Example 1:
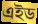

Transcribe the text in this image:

এইড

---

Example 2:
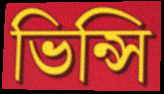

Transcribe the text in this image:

ভিন্সি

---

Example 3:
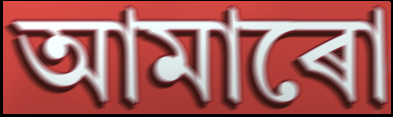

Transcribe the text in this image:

আমাৰো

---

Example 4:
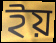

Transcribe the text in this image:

ইয়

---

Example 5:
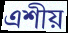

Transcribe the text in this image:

এশীয়